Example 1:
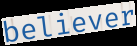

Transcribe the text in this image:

believer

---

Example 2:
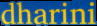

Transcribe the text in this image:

dharini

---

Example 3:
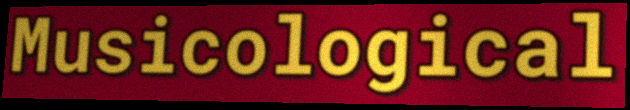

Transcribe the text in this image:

Musicological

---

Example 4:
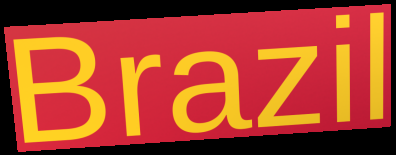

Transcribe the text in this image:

Brazil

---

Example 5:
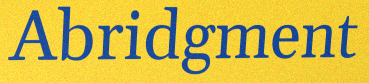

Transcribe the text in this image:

Abridgment